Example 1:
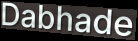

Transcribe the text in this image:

Dabhade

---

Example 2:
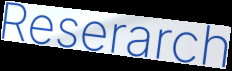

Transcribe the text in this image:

Reserarch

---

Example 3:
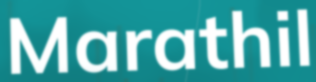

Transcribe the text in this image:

Marathil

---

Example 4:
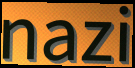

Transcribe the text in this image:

nazi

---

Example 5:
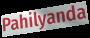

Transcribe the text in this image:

Pahilyanda